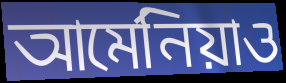
আর্মেনিয়াও